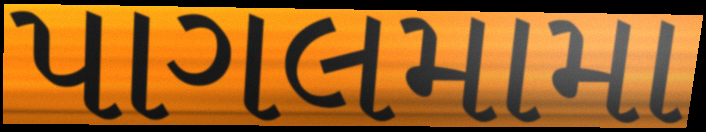
પાગલમામા